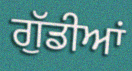
ਗੁੱਡੀਆਂ